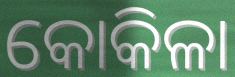
କୋକିଳା